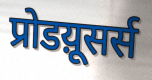
प्रोडय़ूसर्स